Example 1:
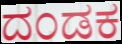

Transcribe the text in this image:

ದಂಡಕ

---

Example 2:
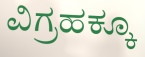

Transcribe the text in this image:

ವಿಗ್ರಹಕ್ಕೂ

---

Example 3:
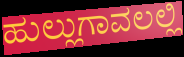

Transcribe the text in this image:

ಹುಲ್ಲುಗಾವಲಲ್ಲಿ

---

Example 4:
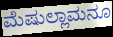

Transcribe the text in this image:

ಮೆಷುಲ್ಲಾಮನೂ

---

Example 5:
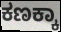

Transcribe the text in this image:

ಕಣಕ್ಕಾ